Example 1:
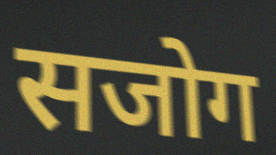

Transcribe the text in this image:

सजोग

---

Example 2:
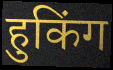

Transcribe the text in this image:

हुकिंग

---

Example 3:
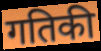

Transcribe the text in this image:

गतिकी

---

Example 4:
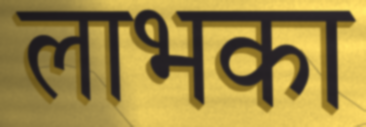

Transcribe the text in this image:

लाभका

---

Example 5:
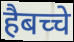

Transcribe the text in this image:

हैबच्चे